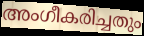
അംഗീകരിച്ചതും